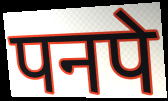
पनपे